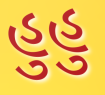
હુહુ